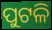
ପୁଟଳି